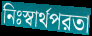
নিঃস্বার্থপরতা